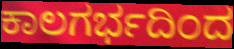
ಕಾಲಗರ್ಭದಿಂದ